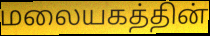
மலையகத்தின்